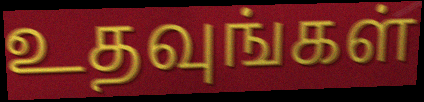
உதவுங்கள்